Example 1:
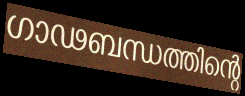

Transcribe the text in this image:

ഗാഢബന്ധത്തിന്റെ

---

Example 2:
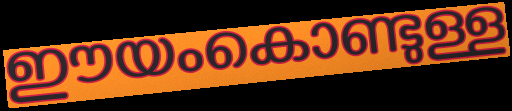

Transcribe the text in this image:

ഈയംകൊണ്ടുള്ള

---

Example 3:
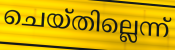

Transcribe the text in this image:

ചെയ്തില്ലെന്ന്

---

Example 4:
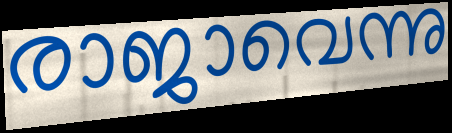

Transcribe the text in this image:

രാജാവെന്നു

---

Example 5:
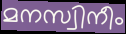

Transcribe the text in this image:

മനസ്വിനീം